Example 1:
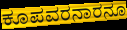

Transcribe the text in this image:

ಕೂಪವರನಾರನೂ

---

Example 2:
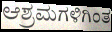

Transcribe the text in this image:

ಆಶ್ರಮಗಳಿಗಿಂತ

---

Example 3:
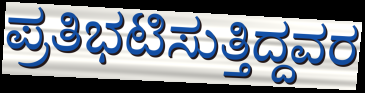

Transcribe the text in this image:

ಪ್ರತಿಭಟಿಸುತ್ತಿದ್ದವರ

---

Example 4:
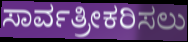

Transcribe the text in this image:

ಸಾರ್ವತ್ರೀಕರಿಸಲು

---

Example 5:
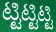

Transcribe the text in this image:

ಟ್ಟಿಟ್ಟಿಟ್ಟಿ